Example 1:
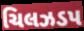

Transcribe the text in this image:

ચિલઝડપ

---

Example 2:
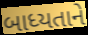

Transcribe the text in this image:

બાધ્યતાને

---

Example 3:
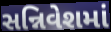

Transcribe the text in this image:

સન્નિવેશમાં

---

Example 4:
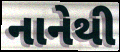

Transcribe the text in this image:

નાનેથી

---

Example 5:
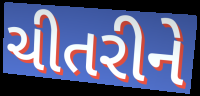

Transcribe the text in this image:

ચીતરીને